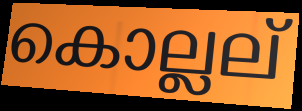
കൊല്ലല്